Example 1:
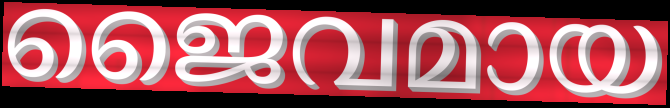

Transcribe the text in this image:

ജൈവമായ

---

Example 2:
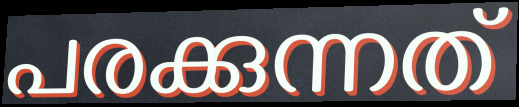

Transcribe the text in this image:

പരക്കുന്നത്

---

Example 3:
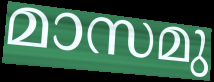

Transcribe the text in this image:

മാസമു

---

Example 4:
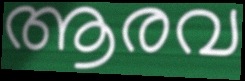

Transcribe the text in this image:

ആരവ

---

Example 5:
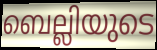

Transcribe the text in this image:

ബെല്ലിയുടെ